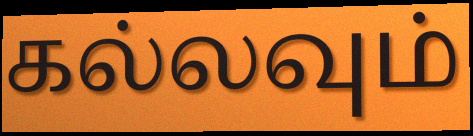
கல்லவும்